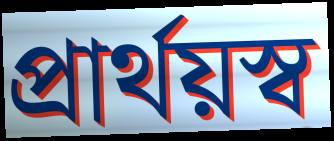
প্রার্থয়স্ব